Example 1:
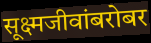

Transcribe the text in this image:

सूक्ष्मजीवांबरोबर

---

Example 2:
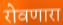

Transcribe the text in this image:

रोवणारा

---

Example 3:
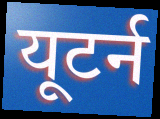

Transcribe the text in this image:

यूटर्न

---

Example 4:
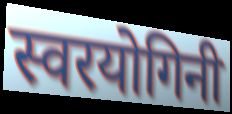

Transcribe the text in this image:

स्वरयोगिनी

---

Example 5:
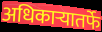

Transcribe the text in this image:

अधिकाऱ्यातर्फे